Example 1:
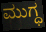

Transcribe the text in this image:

ಮುಗ್ಧ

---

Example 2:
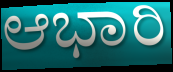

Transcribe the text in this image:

ಆಭಾರಿ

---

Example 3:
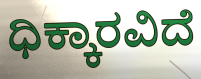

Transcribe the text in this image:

ಧಿಕ್ಕಾರವಿದೆ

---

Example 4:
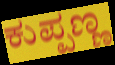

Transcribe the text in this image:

ಕುಪ್ಪಣ್ಣ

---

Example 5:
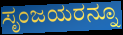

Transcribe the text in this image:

ಸೃಂಜಯರನ್ನೂ